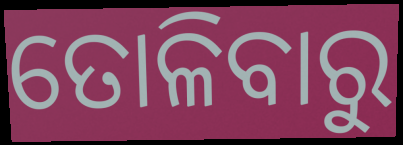
ତୋଳିବାରୁ